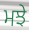
ਮਝੇ